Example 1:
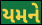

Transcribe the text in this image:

યમને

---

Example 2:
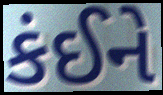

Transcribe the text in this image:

કંઈને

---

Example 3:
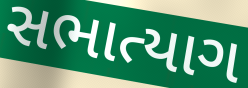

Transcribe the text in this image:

સભાત્યાગ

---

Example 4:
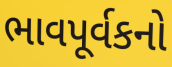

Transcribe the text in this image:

ભાવપૂર્વકનો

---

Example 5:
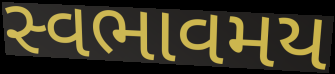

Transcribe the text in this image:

સ્વભાવમય